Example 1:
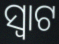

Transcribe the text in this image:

ସ୍ୱାଟ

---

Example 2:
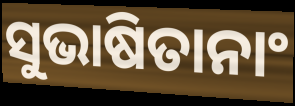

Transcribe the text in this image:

ସୁଭାଷିତାନାଂ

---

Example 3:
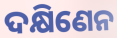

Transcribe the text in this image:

ଦକ୍ଷିଣେନ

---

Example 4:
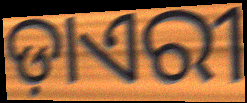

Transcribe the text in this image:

ଡ଼ାଏରୀ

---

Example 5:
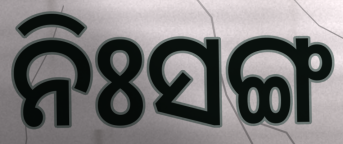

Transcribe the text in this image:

ନିଃସଙ୍ଗ